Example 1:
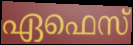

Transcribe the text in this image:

ഏഫെസ്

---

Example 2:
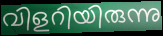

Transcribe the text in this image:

വിളറിയിരുന്നു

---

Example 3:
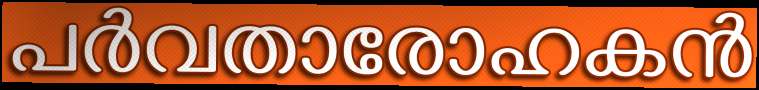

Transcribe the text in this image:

പർവതാരോഹകൻ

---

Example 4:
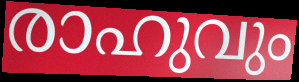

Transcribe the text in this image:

രാഹുവും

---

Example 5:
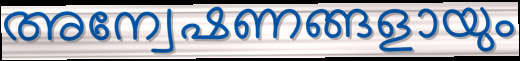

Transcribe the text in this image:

അന്വേഷണങ്ങളായും